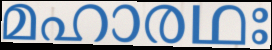
മഹാരഥഃ